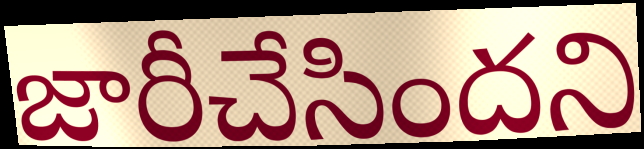
జారీచేసిందని